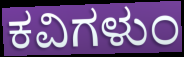
ಕವಿಗಳುಂ